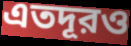
এতদূরও